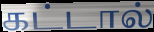
கட்டால்